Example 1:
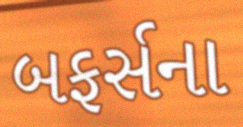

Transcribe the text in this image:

બફર્સના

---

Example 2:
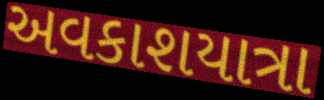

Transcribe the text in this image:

અવકાશયાત્રા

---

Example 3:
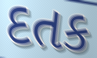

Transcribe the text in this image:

દતક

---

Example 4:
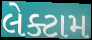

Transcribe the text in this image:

લેક્ટામ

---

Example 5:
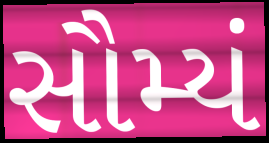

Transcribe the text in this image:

સૌમ્યં